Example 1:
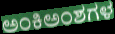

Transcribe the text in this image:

ಅಂಕಿಅಂಶಗಳ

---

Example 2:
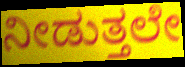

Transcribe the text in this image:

ನೀಡುತ್ತಲೇ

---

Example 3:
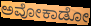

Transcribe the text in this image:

ಅವೋಕಾಡೋ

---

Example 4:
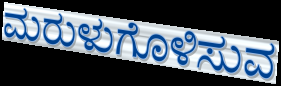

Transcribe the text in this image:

ಮರುಳುಗೊಳಿಸುವ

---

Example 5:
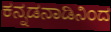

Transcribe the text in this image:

ಕನ್ನಡನಾಡಿನಿಂದ